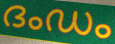
ദംഡം